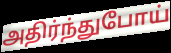
அதிர்ந்துபோய்